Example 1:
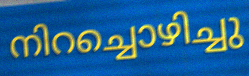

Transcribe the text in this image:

നിറച്ചൊഴിച്ചു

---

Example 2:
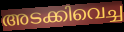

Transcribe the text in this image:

അടക്കിവെച്ച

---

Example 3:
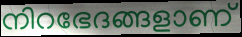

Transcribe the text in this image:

നിറഭേദങ്ങളാണ്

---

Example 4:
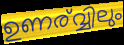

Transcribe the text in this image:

ഉണര്വ്വിലും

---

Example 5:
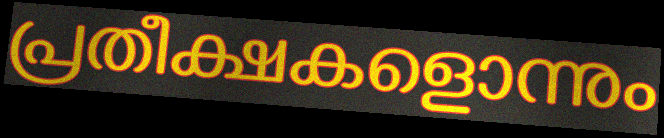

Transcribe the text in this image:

പ്രതീക്ഷകളൊന്നും